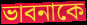
ভাবনাকে